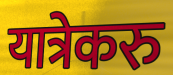
यात्रेकरु